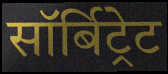
सॉर्बिट्रेट